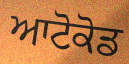
ਆਟੋਕੋਡ